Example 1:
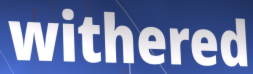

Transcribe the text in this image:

withered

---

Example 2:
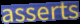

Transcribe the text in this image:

asserts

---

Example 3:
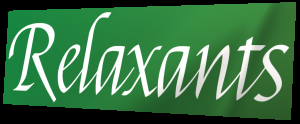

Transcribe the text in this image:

Relaxants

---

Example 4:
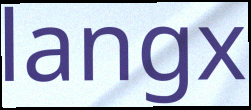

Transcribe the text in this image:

langx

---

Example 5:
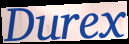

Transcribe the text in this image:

Durex